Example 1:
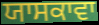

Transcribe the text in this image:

ਯਾਸਕਾਵਾ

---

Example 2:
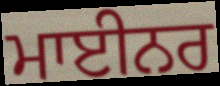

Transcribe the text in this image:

ਮਾਈਨਰ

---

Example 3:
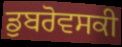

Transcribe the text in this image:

ਡੁਬਰੋਵਸਕੀ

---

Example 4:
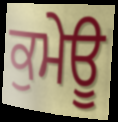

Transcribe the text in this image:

ਕੁਮੇਊ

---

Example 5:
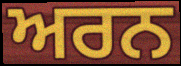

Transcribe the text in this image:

ਅਰਨ